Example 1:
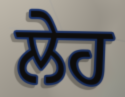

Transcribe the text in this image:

ਲੇਹ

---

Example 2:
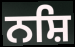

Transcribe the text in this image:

ਨਸ਼ਿ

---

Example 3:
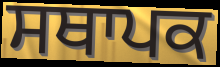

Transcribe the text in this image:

ਸਥਾਪਕ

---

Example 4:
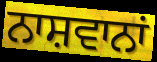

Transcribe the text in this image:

ਨਾਸ਼ਵਾਨਾਂ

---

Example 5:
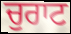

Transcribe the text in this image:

ਚੁਰਾਟ